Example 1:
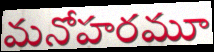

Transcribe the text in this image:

మనోహరమూ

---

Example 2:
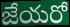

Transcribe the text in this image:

జేయరో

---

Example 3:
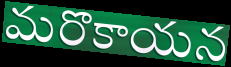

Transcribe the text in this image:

మరొకాయన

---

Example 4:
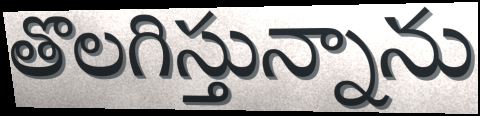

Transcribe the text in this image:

తొలగిస్తున్నాను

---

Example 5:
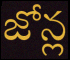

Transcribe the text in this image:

జోన్ల